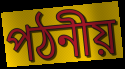
পঠনীয়